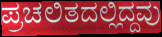
ಪ್ರಚಲಿತದಲ್ಲಿದ್ದವು